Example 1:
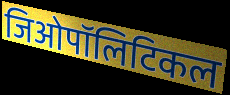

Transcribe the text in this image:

जिओपॉलिटिकल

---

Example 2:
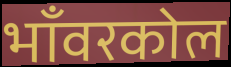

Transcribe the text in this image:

भाँवरकोल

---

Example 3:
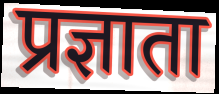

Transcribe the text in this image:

प्रज्ञाता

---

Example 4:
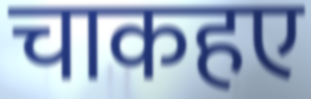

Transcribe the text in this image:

चाकहए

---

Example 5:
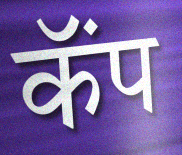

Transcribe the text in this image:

कॅंप